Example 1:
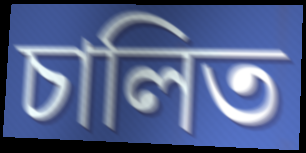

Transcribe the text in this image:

চালিত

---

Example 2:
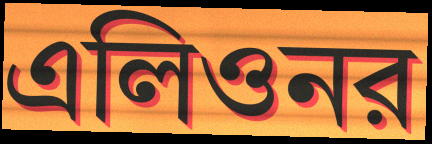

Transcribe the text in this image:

এলিওনর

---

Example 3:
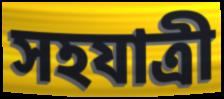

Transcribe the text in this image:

সহযাত্রী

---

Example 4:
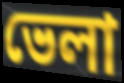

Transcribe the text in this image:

ভেলা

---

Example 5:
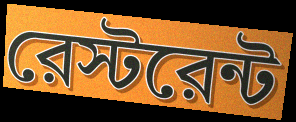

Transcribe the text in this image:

রেস্টরেন্ট